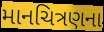
માનચિત્રણના